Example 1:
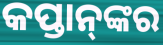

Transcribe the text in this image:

କପ୍ତାନ୍‌ଙ୍କର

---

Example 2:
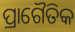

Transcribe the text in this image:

ପ୍ରାଗୈତିକ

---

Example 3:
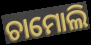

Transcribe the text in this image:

ଚାମୋଲି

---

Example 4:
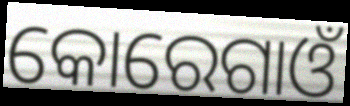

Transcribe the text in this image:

କୋରେଗାଓଁ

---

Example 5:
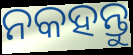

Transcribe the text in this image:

ନକହନ୍ତୁ